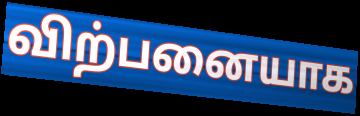
விற்பனையாக